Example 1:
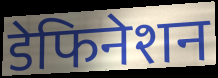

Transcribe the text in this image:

डेफिनेशन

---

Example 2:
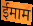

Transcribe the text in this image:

ईमाम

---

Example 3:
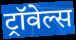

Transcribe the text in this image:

ट्रॉवेल्स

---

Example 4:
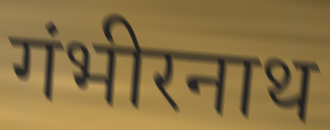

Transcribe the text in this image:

गंभीरनाथ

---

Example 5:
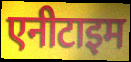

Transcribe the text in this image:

एनीटाइम